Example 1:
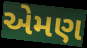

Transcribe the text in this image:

એમણ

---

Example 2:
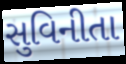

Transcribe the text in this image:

સુવિનીતા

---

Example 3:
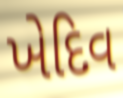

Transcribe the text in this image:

ખેદિવ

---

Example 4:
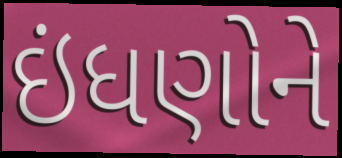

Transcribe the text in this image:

ઇંધણોને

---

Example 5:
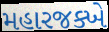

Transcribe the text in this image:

મહારજક્ખે